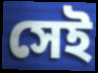
সেই